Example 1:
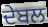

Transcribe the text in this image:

ਦੇਬਲ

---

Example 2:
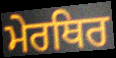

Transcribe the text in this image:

ਮੇਰਥਿਰ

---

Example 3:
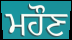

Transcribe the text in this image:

ਮਹੌਣ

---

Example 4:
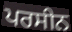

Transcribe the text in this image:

ਪਰਸੀਨ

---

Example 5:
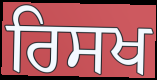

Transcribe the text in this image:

ਰਿਸਖ